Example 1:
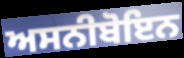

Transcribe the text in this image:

ਅਸਨੀਬੋਇਨ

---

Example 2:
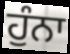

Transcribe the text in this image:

ਹੁੰਨਾ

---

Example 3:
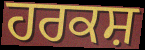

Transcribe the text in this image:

ਹਰਕਸ਼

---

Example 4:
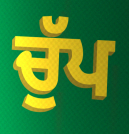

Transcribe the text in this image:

ਚੁੱਪ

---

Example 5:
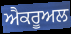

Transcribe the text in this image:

ਐਕਰੂਅਲ